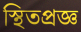
স্থিতপ্রজ্ঞ